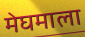
मेघमाला